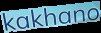
kakhano